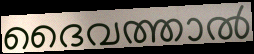
ദൈവത്താൽ